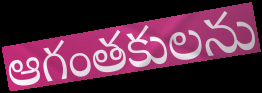
ఆగంతకులను